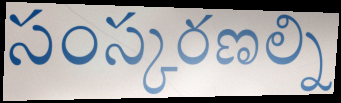
సంస్కరణల్ని